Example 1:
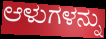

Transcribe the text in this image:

ಆಳುಗಳನ್ನು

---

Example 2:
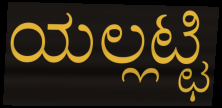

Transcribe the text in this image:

ಯಲ್ಲಟ್ಟಿ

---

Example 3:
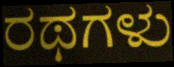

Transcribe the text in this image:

ರಥಗಳು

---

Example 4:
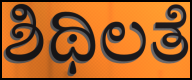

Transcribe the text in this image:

ಶಿಥಿಲತೆ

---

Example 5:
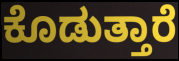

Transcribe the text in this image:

ಕೊಡುತ್ತಾರೆ